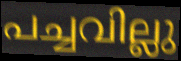
പച്ചവില്ലു